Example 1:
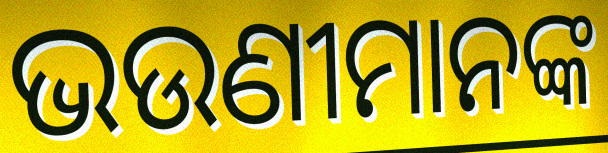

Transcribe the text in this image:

ଭଉଣୀମାନଙ୍କ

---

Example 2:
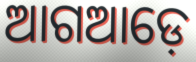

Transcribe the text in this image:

ଆଗଆଡ଼େ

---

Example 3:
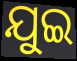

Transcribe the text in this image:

ଯୁଇ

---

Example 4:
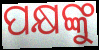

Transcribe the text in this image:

ପକ୍ଷଙ୍କୁ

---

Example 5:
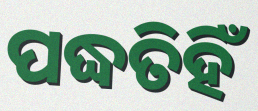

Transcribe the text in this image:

ପଦ୍ଧତିହିଁ